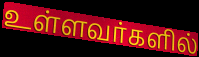
உள்ளவர்களில்